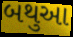
બથુઆ